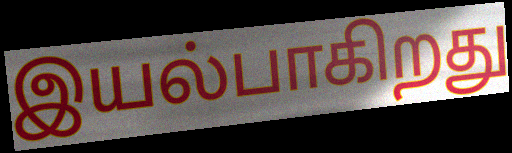
இயல்பாகிறது